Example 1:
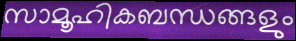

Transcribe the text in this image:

സാമൂഹികബന്ധങ്ങളും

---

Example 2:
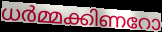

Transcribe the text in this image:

ധർമ്മക്കിണറോ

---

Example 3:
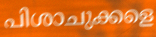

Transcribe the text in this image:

പിശാചുക്കളെ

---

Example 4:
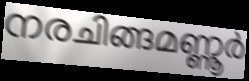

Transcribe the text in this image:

നരചിങ്ങമണ്ണൂർ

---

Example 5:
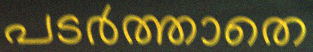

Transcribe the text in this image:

പടർത്താതെ